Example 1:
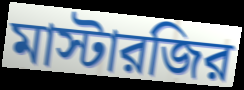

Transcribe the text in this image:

মাস্টারজির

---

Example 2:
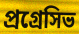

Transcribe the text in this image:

প্রগ্রেসিভ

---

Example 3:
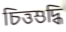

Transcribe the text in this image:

চিত্তশুদ্ধি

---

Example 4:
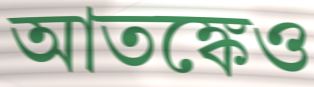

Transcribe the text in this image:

আতঙ্কেও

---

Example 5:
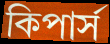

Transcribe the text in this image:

কিপার্স